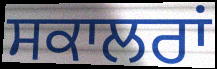
ਸਕਾਲਰਾਂ